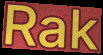
Rak